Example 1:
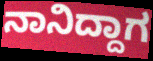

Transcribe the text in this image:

ನಾನಿದ್ದಾಗ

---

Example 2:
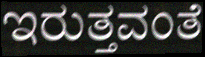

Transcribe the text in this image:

ಇರುತ್ತವಂತೆ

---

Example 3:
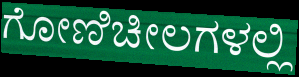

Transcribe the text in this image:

ಗೋಣಿಚೀಲಗಳಲ್ಲಿ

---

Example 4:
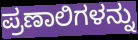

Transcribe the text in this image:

ಪ್ರಣಾಲಿಗಳನ್ನು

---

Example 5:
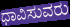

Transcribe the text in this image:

ಧಾವಿಸುವರು